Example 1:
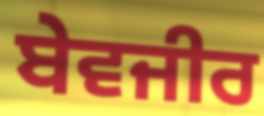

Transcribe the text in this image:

ਬੇਵਜੀਰ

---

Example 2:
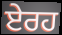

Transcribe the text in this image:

ਏਰਹ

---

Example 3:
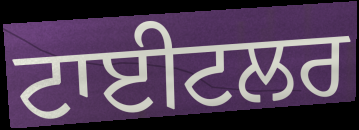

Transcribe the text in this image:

ਟਾਈਟਲਰ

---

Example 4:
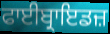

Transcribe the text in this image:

ਫਾਈਬ੍ਰਾਇਡਜ਼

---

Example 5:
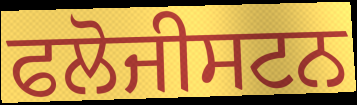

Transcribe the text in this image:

ਫਲੋਜੀਸਟਨ